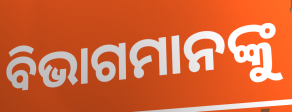
ବିଭାଗମାନଙ୍କୁ